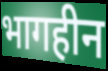
भागहीन